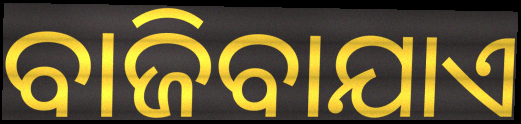
ବାଜିବାଯାଏ